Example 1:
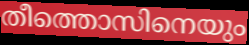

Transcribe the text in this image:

തീത്തൊസിനെയും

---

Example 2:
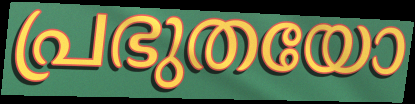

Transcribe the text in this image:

പ്രഭുതയോ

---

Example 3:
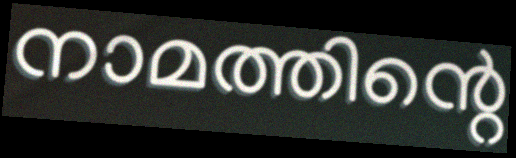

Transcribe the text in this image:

നാമത്തിന്റെ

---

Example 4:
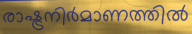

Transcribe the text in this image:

രാഷ്ട്രനിർമാണത്തിൽ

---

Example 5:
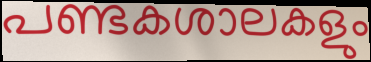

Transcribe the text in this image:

പണ്ടകശാലകളും